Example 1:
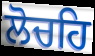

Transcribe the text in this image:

ਲੋਚਹਿ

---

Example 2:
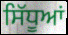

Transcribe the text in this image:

ਸਿੱਧੂਆਂ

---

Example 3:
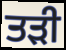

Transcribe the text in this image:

ਤੜੀ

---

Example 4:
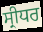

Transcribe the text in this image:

ਸ੍ਰੀਧਰ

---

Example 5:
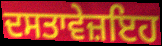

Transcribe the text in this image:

ਦਸਤਾਵੇਜ਼ਇਹ